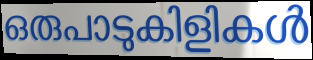
ഒരുപാടുകിളികൾ